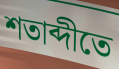
শতাব্দীতে